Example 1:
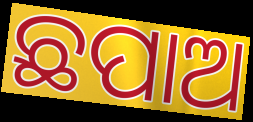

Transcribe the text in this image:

ଛପାଅ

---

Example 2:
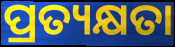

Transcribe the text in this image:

ପ୍ରତ୍ୟକ୍ଷତା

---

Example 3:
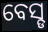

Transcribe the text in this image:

ବେସ୍ଡ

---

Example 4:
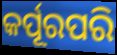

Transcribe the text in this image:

କର୍ପୂରପରି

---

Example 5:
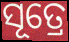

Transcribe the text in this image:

ସୂତ୍ରେ